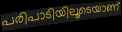
പരിപാടിയിലൂടെയാണ്